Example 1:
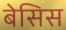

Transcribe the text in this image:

बेसिस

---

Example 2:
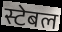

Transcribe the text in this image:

स्‍टेबल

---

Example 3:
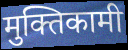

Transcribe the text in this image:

मुक्तिकामी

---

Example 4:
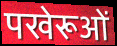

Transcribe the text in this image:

पखेरूओं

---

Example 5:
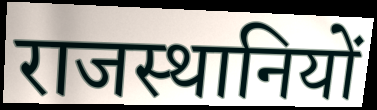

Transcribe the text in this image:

राजस्थानियों